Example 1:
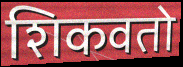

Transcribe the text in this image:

शिकवतो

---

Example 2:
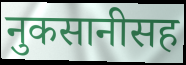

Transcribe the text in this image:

नुकसानीसह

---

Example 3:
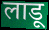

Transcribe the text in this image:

लाडू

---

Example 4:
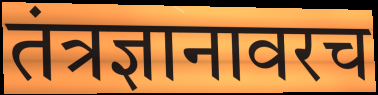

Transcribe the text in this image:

तंत्रज्ञानावरच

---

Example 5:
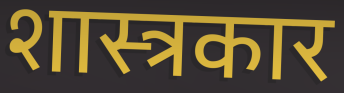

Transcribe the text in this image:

शास्त्रकार